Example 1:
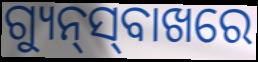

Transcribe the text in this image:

ଗ୍ୟୁନ୍‍ସ୍‍ବାଖରେ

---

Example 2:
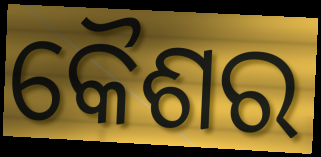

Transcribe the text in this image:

କୈଶର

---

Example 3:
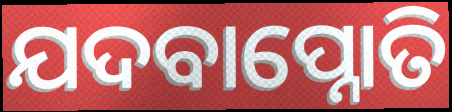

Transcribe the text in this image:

ଯଦବାପ୍ନୋତି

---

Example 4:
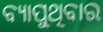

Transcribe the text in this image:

ବ୍ୟାପୁଥିବାର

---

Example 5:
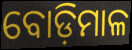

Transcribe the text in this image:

ବୋଡ଼ିମାଳ